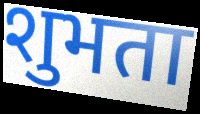
शुभता